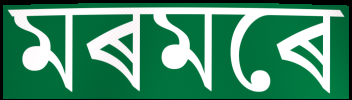
মৰমৰে